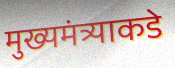
मुख्यमंत्र्याकडे